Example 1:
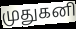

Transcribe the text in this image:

முதுகனி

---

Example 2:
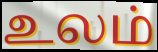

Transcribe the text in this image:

உலம்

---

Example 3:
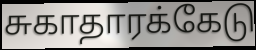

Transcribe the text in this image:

சுகாதாரக்கேடு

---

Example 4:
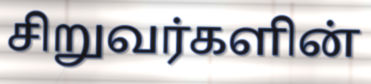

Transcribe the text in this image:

சிறுவர்களின்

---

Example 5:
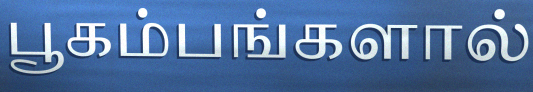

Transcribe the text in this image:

பூகம்பங்களால்